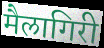
मैलागिरी